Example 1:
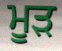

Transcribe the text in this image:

ਮੂੜ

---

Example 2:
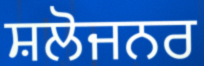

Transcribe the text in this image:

ਸ਼ਲੋਜਨਰ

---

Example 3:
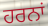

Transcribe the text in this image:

ਹਰਨਾਂ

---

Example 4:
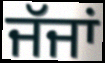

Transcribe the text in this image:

ਜੱਜਾਂ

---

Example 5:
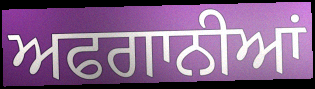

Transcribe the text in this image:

ਅਫਗਾਨੀਆਂ